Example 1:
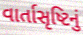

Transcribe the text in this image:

વાર્તાસૃષ્ટિનું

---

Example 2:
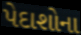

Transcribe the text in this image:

પેદાશોના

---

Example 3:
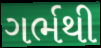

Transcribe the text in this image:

ગર્ભથી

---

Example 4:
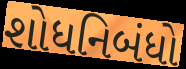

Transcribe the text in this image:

શોધનિબંધો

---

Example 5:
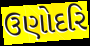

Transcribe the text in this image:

ઉણોદરિ